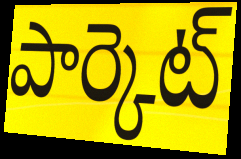
పార్కెట్